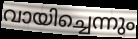
വായിച്ചെന്നും